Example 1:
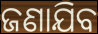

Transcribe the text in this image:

ଜଣାଯିବ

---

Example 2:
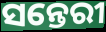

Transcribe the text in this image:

ସନ୍ତେରୀ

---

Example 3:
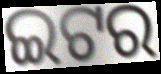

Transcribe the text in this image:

ଇଟର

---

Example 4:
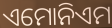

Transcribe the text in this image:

ଏମୋନିଏମ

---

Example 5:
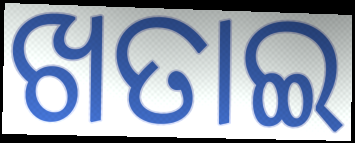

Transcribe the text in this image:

ଖତାଇ